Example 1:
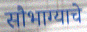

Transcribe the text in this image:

सौभाग्याचे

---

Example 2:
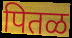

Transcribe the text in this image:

पितळ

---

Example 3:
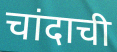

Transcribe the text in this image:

चांदाची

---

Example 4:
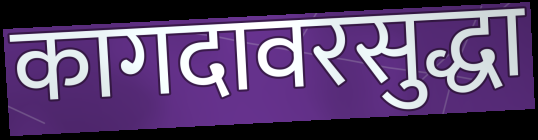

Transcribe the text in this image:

कागदावरसुद्धा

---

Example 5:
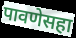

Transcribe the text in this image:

पावणेसहा